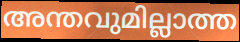
അന്തവുമില്ലാത്ത